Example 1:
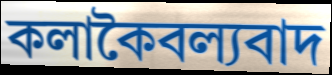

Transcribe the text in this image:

কলাকৈবল্যবাদ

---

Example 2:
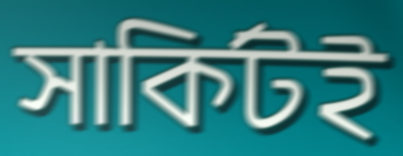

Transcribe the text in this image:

সার্কিটই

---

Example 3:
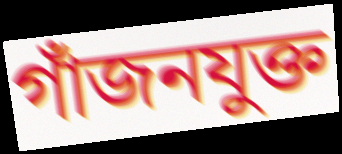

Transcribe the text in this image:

গাঁজনযুক্ত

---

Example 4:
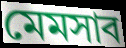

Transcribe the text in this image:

মেমসাব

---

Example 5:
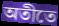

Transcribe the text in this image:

অতীতে